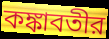
কঙ্কাবতীর